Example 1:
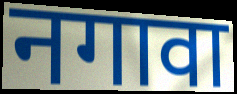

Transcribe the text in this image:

नगावा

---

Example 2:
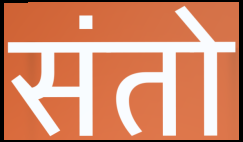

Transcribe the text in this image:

संतो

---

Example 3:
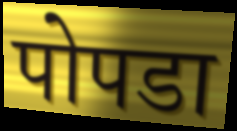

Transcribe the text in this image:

पोपडा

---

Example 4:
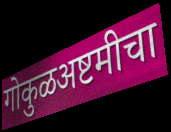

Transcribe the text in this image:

गोकुळअष्टमीचा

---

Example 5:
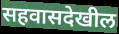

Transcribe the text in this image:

सहवासदेखील